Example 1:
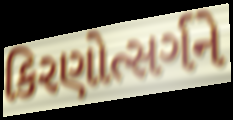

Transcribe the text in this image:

કિરણોત્સર્ગને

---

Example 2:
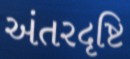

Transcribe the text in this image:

અંતરદૃષ્ટિ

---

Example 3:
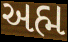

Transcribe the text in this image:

અહ્મ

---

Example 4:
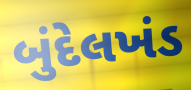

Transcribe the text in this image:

બુંદેલખંડ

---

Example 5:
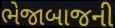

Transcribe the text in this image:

ભેજાબાજની